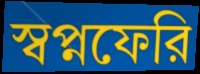
স্বপ্নফেরি